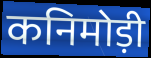
कनिमोड़ी